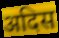
अदिस